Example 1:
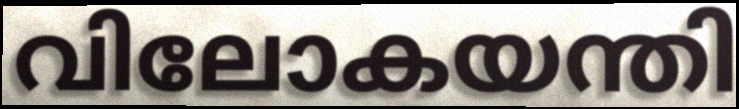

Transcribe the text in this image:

വിലോകയന്തി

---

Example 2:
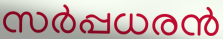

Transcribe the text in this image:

സർപ്പധരൻ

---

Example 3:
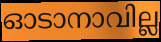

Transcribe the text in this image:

ഓടാനാവില്ല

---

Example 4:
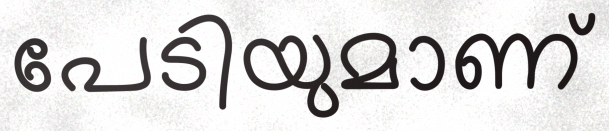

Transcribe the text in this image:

പേടിയുമാണ്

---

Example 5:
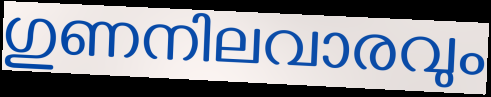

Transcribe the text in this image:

ഗുണനിലവാരവും